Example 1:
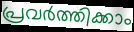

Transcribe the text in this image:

പ്രവർത്തിക്കാം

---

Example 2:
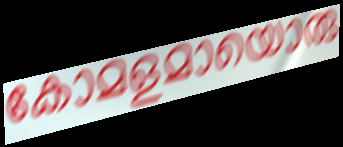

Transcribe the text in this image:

കോമളമായൊരു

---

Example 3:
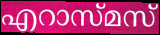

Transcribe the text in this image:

എറാസ്മസ്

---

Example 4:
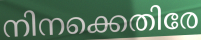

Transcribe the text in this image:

നിനക്കെതിരേ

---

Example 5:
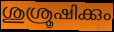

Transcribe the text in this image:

ശുശ്രൂഷിക്കും